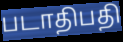
படாதிபதி